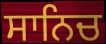
ਸਾਨਿਚ